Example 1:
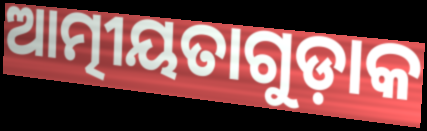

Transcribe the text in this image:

ଆତ୍ମୀୟତାଗୁଡ଼ାକ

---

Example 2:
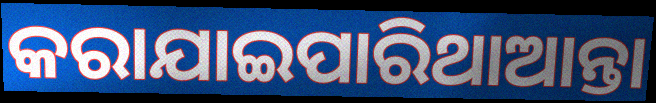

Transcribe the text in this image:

କରାଯାଇପାରିଥାଆନ୍ତା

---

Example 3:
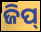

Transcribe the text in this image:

ଜିପ୍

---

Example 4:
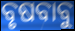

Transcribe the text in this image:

ବୃଷବାବୁ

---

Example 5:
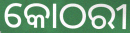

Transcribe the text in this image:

କୋଠରୀ